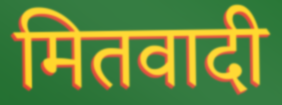
मितवादी